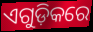
ଏଗୁଡ଼ିକରେ